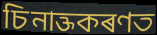
চিনাক্তকৰণত